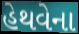
હેથવેના